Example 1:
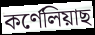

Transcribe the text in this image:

কৰ্ণেলিয়াছ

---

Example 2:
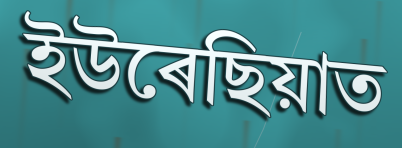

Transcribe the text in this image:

ইউৰেছিয়াত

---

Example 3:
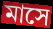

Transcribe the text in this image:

মাসে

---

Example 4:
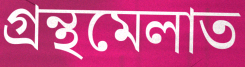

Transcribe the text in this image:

গ্ৰন্থমেলাত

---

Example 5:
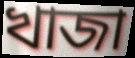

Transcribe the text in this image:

খাজা